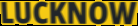
LUCKNOW